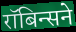
रॉबिन्सने